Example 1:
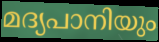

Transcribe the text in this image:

മദ്യപാനിയും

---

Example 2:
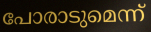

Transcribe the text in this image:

പോരാടുമെന്ന്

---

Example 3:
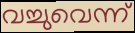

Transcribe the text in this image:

വച്ചുവെന്ന്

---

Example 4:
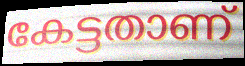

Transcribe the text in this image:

കേട്ടതാണ്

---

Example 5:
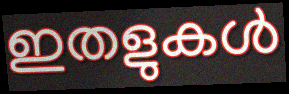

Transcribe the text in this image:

ഇതളുകൾ